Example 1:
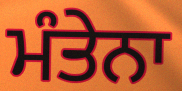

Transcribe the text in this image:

ਮੰਤੇਨਾ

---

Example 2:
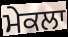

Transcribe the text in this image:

ਮੇਕਲਾ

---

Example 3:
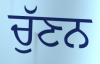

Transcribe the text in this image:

ਚੁੱਣਨ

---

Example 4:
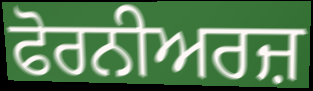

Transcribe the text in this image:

ਫੋਰਨੀਅਰਜ਼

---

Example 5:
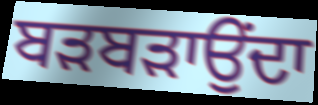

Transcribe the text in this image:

ਬੜਬੜਾਉਂਦਾ